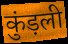
कुंड़ली